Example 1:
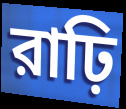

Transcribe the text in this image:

রাঢ়ি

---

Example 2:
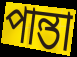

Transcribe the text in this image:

পান্তা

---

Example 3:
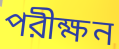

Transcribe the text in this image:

পরীক্ষন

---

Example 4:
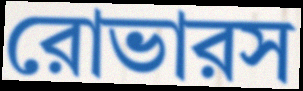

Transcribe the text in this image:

রোভারস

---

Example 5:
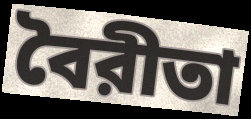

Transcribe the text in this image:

বৈরীতা